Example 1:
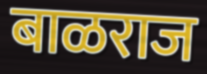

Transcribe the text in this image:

बाळराज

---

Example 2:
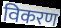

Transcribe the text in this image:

विकरण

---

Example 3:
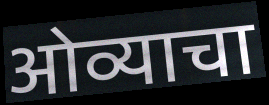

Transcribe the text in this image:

ओव्याचा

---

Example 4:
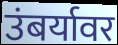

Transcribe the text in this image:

उंबर्यावर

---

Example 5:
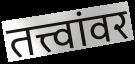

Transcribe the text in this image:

तत्त्वांवर